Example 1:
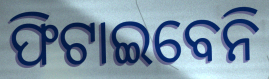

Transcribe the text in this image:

ଫିଟାଇବେନି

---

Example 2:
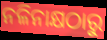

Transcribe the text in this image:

ନଳିନାକ୍ଷଠାରୁ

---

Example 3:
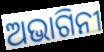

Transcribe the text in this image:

ଅଭାଗିନୀ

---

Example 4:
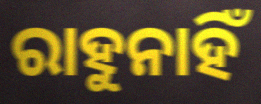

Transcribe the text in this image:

ରାହୁନାହିଁ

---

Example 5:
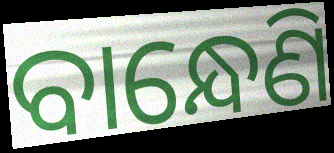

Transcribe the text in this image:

ବାନ୍ଧେଣି